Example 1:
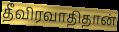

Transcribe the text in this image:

தீவிரவாதிதான்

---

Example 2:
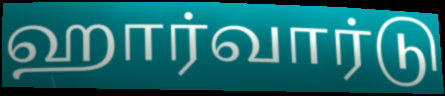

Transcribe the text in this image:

ஹார்வார்டு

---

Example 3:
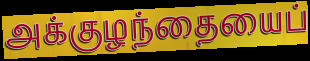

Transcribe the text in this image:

அக்குழந்தையைப்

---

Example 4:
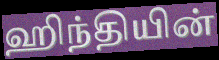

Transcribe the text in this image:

ஹிந்தியின்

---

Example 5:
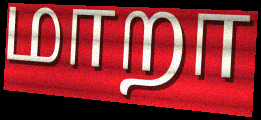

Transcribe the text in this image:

மாறா